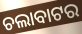
ଚଲାବାଟର